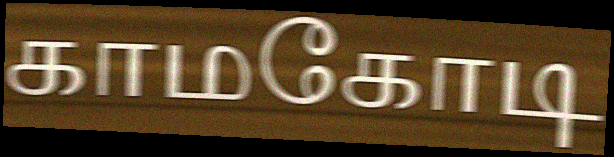
காமகோடி